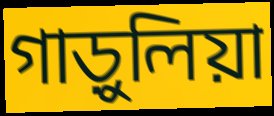
গাড়ুলিয়া